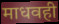
माधवही